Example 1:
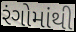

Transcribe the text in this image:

રંગોમાંથી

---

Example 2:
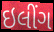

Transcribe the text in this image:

ઇલીંગ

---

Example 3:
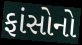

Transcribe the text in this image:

ફાંસોનો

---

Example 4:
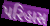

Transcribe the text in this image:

પરિહાસ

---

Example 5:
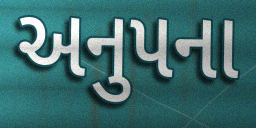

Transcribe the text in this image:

અનુપના